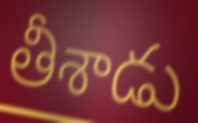
తీశాడు